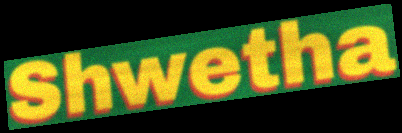
Shwetha